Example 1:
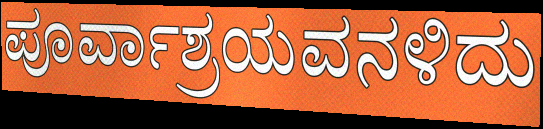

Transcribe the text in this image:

ಪೂರ್ವಾಶ್ರಯವನಳಿದು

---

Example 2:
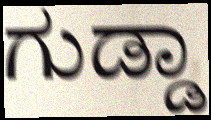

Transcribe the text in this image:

ಗುಡ್ಡಾ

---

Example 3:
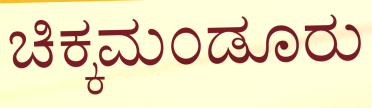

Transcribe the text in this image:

ಚಿಕ್ಕಮಂಡೂರು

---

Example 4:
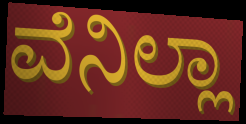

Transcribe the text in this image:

ವೆನಿಲ್ಲಾ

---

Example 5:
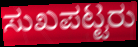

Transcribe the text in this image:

ಸುಖಪಟ್ಟರು